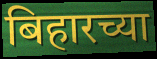
बिहारच्या